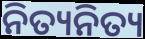
ନିତ୍ୟନିତ୍ୟ